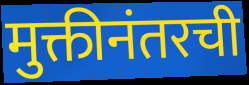
मुक्तीनंतरची